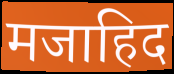
मजाहिद